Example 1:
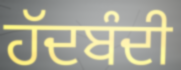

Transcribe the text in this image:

ਹੱਦਬੰਦੀ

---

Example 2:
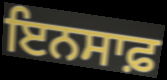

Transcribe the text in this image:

ਇਨਸਾਫ਼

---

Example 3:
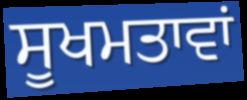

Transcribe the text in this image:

ਸੂਖਮਤਾਵਾਂ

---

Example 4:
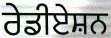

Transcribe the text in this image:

ਰੇਡੀਏਸ਼ਨ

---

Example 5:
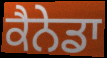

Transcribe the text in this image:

ਕੈਨੇਡਾ